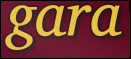
gara